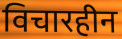
विचारहीन